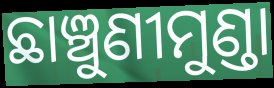
ଛାଞ୍ଚୁଣୀମୁଣ୍ଡା